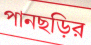
পানছড়ির